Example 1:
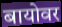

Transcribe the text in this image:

बायोवर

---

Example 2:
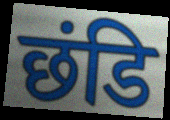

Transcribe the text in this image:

छंडि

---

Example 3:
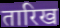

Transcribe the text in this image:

तारिख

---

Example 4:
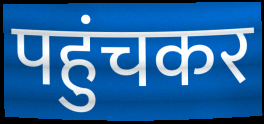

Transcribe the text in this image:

पहुंचकर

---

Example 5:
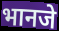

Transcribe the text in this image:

भानजे